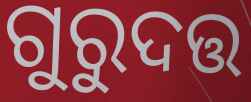
ଗୁରୁଦତ୍ତ